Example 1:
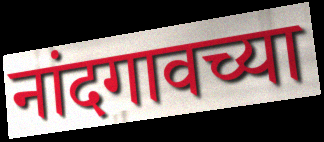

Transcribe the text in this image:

नांदगावच्या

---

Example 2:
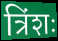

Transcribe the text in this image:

त्रिंशः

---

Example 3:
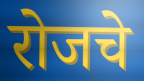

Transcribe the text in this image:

रोजचे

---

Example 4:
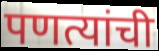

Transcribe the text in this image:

पणत्यांची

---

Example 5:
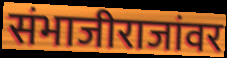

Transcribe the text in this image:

संभाजीराजांवर